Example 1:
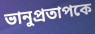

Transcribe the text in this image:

ভানুপ্রতাপকে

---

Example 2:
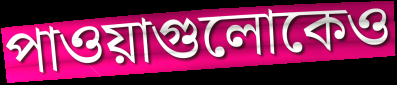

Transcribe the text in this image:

পাওয়াগুলোকেও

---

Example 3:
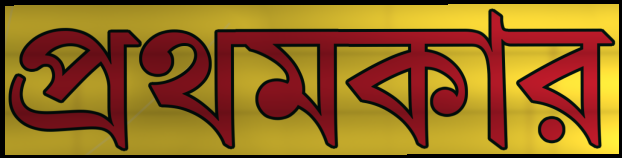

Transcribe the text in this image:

প্রথমকার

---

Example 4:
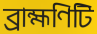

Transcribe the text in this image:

ব্রাহ্মণিটি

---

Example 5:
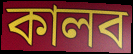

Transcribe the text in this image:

কালব